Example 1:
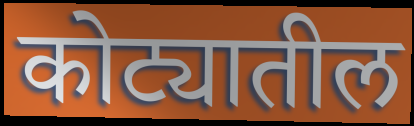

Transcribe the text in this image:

कोट्यातील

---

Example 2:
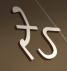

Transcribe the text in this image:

रेऽ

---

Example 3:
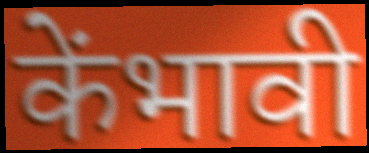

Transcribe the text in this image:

केंभावी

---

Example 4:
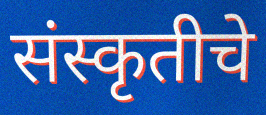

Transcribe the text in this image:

संस्कृतीचे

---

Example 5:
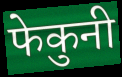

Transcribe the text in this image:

फेकुनी